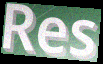
Res